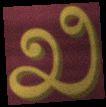
ಖಿ